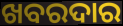
ଖବରଦାର